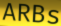
ARBs